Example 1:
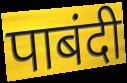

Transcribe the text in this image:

पाबंदी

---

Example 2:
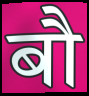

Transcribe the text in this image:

बौ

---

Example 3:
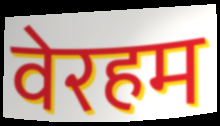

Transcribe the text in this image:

वेरहम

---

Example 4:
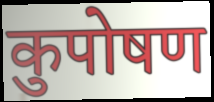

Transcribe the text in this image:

कुपोषण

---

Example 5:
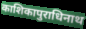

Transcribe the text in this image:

काशिकापुराधिनाथ